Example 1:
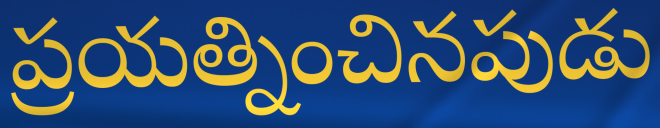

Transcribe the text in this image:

ప్రయత్నించినపుడు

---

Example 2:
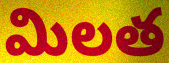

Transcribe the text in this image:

మిలత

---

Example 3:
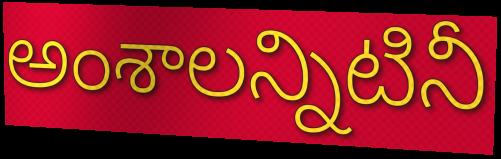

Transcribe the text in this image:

అంశాలన్నిటినీ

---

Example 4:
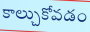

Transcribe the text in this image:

కాల్చుకోవడం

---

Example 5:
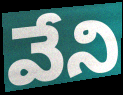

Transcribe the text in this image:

వేని